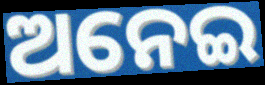
ଅନେଇ